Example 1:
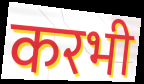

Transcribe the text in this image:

करभी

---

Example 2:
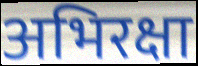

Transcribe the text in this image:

अभिरक्षा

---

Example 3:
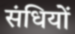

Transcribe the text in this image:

संधियों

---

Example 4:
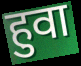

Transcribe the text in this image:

हुवा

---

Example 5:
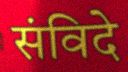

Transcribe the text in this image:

संविदे